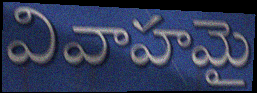
వివాహమై